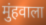
मुंहवाला